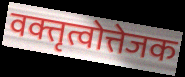
वक्तृत्वोत्तेजक